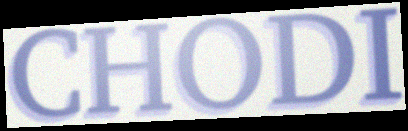
CHODI